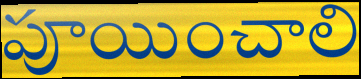
పూయించాలి